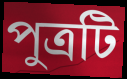
পুত্রটি